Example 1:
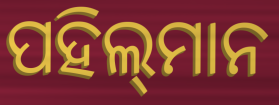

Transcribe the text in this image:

ପହିଲ୍‌ମାନ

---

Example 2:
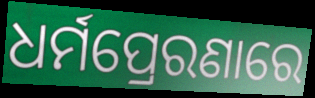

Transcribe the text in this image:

ଧର୍ମପ୍ରେରଣାରେ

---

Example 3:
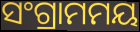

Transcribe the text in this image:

ସଂଗ୍ରାମମୟ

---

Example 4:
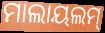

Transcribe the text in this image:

ମାଲାୟଲମ୍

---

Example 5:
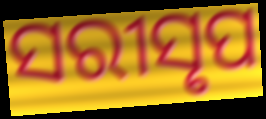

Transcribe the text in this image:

ସରୀସୃପ